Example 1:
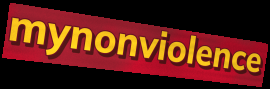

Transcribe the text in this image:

mynonviolence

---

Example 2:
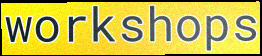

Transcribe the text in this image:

workshops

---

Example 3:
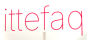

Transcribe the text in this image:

ittefaq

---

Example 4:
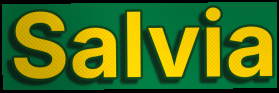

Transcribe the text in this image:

Salvia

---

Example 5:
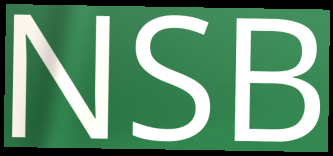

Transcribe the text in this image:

NSB